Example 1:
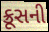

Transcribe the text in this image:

ક્રૂસની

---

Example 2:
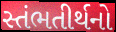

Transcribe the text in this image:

સ્તંભતીર્થનો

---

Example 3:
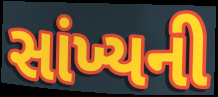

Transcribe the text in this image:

સાંખ્યની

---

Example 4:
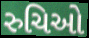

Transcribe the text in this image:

રુચિઓ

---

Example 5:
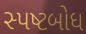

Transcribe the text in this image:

સ્પષ્ટબોધ